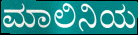
ಮಾಲಿನಿಯ